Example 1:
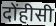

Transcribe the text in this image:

दोंहीसी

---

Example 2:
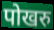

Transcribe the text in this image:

पोखरु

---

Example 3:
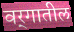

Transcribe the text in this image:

वर्गातील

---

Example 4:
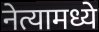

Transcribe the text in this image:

नेत्यामध्ये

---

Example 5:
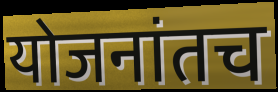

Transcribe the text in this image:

योजनांतच